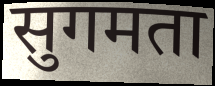
सुगमता